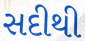
સદીથી